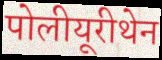
पोलीयूरीथेन